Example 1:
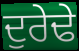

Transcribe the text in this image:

ਦੁਰੇਢੇ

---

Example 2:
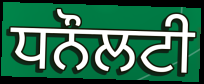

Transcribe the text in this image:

ਧਨੌਲਟੀ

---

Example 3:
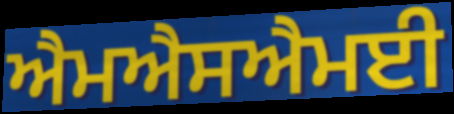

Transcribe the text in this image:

ਐਮਐਸਐਮਈ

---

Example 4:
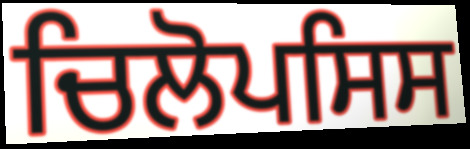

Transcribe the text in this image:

ਚਿਲੋਪਸਿਸ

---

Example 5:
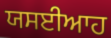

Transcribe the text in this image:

ਯਸਈਆਹ